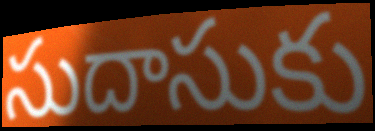
సుదాసుకు